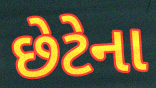
છેટેના